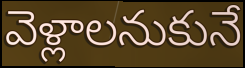
వెళ్లాలనుకునే